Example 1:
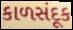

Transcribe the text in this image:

કાળસંદૂક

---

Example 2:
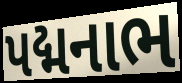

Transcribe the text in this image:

પદ્મનાભ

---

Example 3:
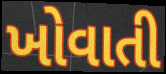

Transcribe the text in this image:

ખોવાતી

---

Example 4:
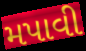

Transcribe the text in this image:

મપાવી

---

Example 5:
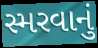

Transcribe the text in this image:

સ્મરવાનું